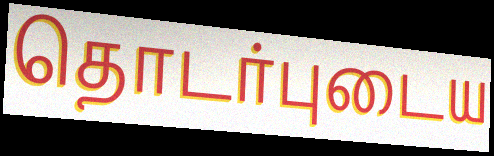
தொடர்புடைய